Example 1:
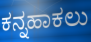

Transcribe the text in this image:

ಕನ್ನಹಾಕಲು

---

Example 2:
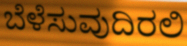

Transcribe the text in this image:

ಬೆಳೆಸುವುದಿರಲಿ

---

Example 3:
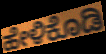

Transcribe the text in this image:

ಹೇಳಿಕೊಡಿ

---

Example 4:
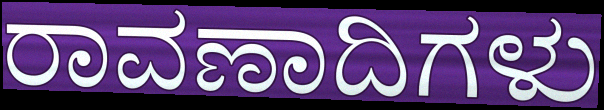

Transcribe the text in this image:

ರಾವಣಾದಿಗಳು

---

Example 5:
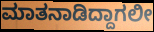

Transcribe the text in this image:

ಮಾತನಾಡಿದ್ದಾಗಲೀ